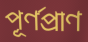
পূর্ণপ্রাণ